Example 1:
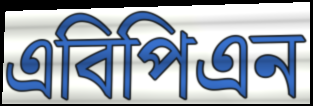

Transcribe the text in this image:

এবিপিএন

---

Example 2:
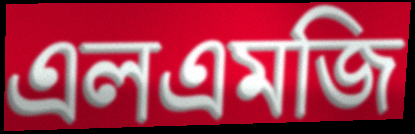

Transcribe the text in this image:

এলএমজি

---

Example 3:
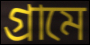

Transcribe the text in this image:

গ্রামে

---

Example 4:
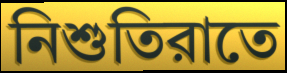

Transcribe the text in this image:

নিশুতিরাতে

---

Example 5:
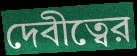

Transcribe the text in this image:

দেবীত্বের